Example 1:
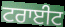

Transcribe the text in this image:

ਟਰਾਈਟ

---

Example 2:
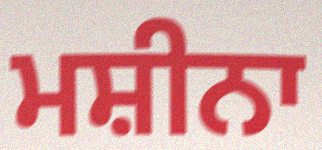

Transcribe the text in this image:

ਮਸ਼ੀਨਾ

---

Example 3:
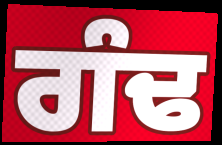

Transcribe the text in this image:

ਗੰਢ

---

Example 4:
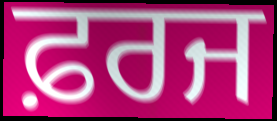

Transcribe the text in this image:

ਫ਼ਰਜ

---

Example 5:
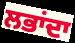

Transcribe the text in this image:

ਲਭਾਂਦਾ